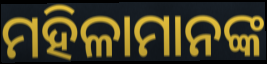
ମହିଳାମାନଙ୍କ